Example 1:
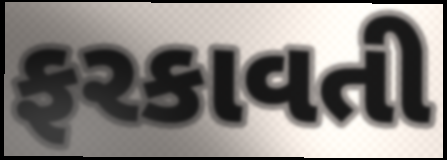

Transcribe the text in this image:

ફરકાવતી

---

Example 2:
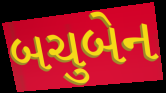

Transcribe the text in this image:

બચુબેન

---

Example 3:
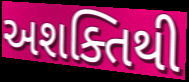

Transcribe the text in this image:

અશક્તિથી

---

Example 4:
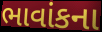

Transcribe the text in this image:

ભાવાંકના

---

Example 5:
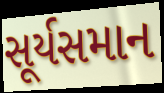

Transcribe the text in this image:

સૂર્યસમાન